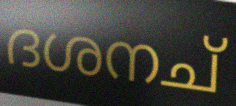
ദശനച്